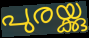
പുരയ്ക്കു